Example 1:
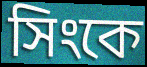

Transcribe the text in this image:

সিংকে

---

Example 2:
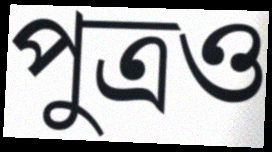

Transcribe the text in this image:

পুত্রও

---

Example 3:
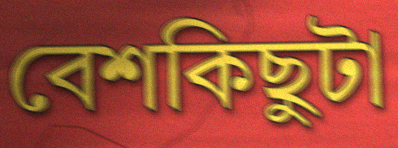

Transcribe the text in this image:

বেশকিছুটা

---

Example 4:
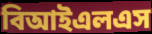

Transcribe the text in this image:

বিআইএলএস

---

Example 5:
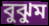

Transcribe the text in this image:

বুঝুম